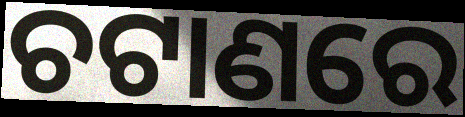
ଚଟାଣରେ